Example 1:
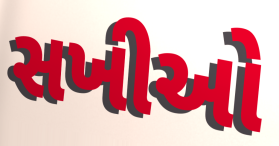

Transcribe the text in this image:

સખીઓ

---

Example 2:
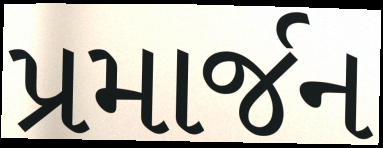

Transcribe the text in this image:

પ્રમાર્જન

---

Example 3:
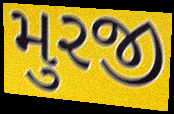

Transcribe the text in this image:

મુરજી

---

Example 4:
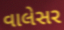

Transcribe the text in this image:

વાલેસર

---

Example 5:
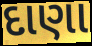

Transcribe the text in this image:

દાણા